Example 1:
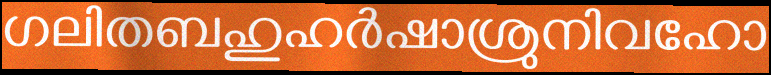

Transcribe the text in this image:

ഗലിതബഹുഹർഷാശ്രുനിവഹോ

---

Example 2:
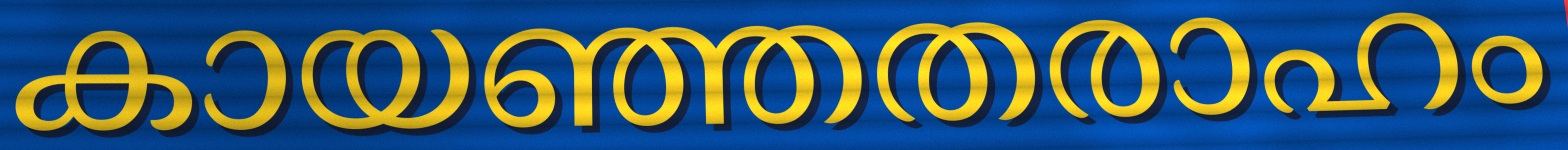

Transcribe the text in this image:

കായഞ്ഞതരാഹം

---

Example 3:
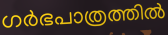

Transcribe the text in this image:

ഗർഭപാത്രത്തിൽ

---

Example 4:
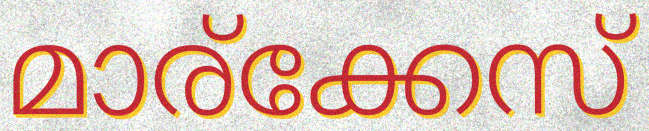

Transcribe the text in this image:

മാര്ക്കേസ്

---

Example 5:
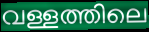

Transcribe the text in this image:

വള്ളത്തിലെ